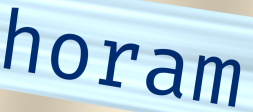
horam